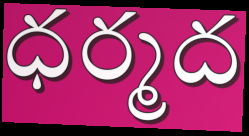
ధర్మద